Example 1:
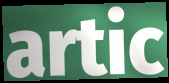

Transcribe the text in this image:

artic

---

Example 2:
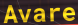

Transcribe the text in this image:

Avare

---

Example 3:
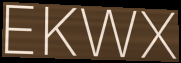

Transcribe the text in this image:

EKWX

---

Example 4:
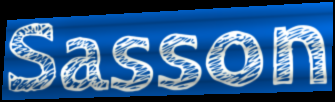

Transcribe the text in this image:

Sasson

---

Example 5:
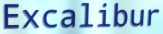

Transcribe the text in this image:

Excalibur